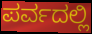
ಪರ್ವದಲ್ಲಿ